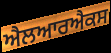
ਐਲਆਰਐਕਸ